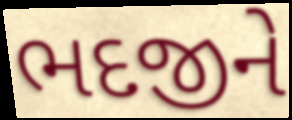
ભદજીને